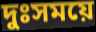
দুঃসময়ে